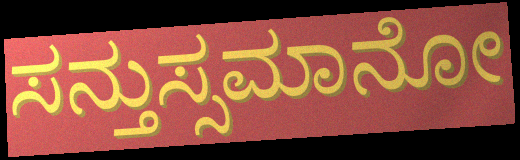
ಸನ್ತುಸ್ಸಮಾನೋ